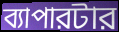
ব্যাপারটার